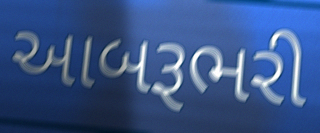
આબરૂભરી